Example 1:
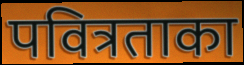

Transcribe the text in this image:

पवित्रताका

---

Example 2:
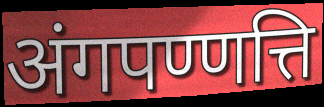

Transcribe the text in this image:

अंगपण्णत्ति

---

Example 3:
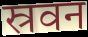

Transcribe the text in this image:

स्रवन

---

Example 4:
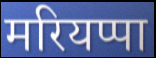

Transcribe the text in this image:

मरियप्पा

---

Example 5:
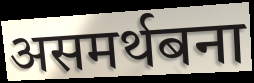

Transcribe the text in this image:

असमर्थबना